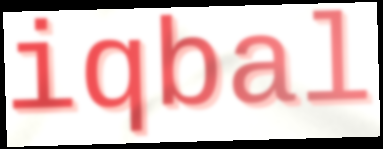
iqbal